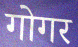
गोगर